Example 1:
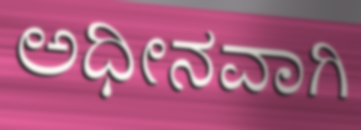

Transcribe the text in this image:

ಅಧೀನವಾಗಿ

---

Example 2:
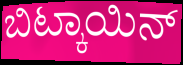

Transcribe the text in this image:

ಬಿಟ್ಕಾಯಿನ್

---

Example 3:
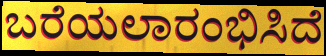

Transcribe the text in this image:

ಬರೆಯಲಾರಂಭಿಸಿದೆ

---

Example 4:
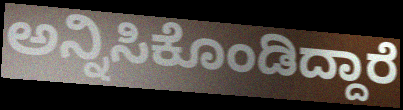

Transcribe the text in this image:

ಅನ್ನಿಸಿಕೊಂಡಿದ್ದಾರೆ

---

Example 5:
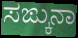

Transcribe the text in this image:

ಸಙ್ಕುನಾ